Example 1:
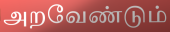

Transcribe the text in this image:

அறவேண்டும்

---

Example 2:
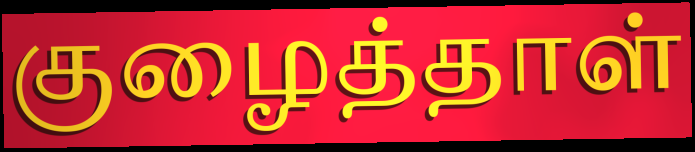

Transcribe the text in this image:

குழைத்தாள்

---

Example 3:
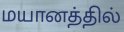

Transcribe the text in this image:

மயானத்தில்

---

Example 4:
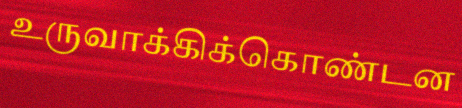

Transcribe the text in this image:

உருவாக்கிக்கொண்டன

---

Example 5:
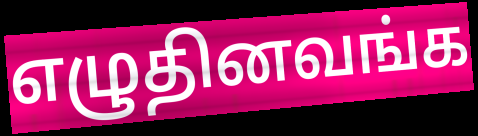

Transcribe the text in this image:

எழுதினவங்க